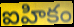
ఐహికం